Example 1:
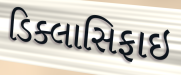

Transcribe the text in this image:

ડિક્લાસિફાઇ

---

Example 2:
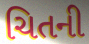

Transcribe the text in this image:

ચિતની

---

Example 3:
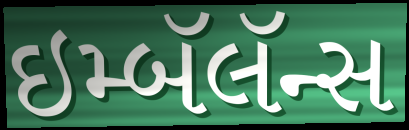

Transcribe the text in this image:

ઇમ્બૅલૅન્સ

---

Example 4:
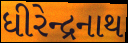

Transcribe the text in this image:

ધીરેન્દ્રનાથ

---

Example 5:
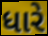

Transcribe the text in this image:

ધારે